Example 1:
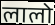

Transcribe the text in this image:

लालो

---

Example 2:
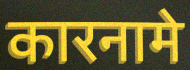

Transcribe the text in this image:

कारनामे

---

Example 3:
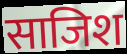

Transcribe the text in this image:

साजिश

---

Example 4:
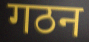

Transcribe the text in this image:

गठन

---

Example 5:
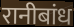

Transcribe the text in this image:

रानीबांध